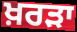
ਖ਼ਰੜਾ